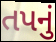
તપનું